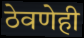
ठेवणेही